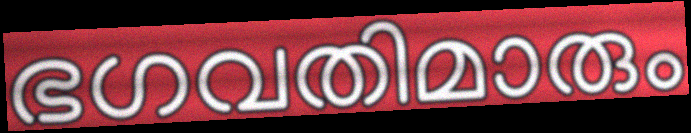
ഭഗവതിമാരും